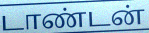
டாண்டன்